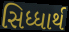
સિધ્ધાર્થ